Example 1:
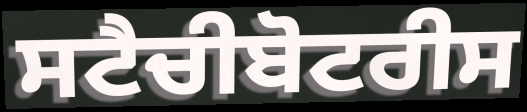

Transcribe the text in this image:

ਸਟੈਚੀਬੋਟਰੀਸ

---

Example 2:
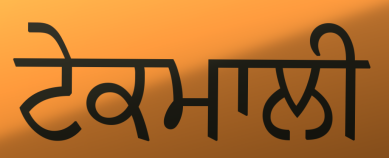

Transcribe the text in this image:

ਟੇਕਮਾਲੀ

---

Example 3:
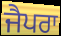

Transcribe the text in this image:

ਜੈਪਰਾ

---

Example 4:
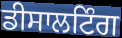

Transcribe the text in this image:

ਡੀਸਾਲਟਿੰਗ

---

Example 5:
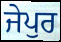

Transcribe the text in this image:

ਜੇਪੁਰ